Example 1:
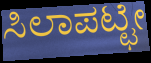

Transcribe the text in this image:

ಸಿಲಾಪಟ್ಟೇ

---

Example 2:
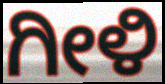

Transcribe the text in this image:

ಗೀಳಿ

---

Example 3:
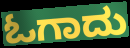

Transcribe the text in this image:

ಓಗಾದು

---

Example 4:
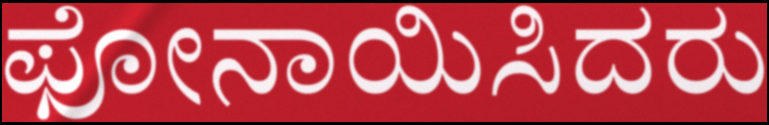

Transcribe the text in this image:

ಫೋನಾಯಿಸಿದರು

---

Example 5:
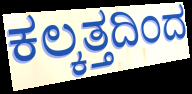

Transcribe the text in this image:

ಕಲ್ಕತ್ತದಿಂದ